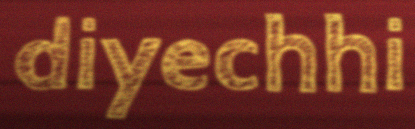
diyechhi